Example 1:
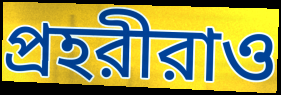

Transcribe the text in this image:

প্রহরীরাও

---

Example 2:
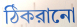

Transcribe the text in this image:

ঠিকরানো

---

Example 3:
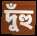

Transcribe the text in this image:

দুঁহু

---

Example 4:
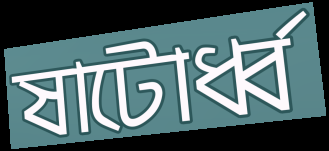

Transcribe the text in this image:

ষাটোর্ধ্ব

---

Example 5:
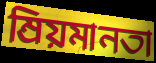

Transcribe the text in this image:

ম্রিয়মানতা